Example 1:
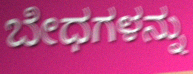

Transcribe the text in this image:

ಬೇಧಗಳನ್ನು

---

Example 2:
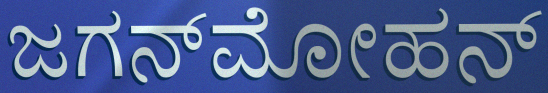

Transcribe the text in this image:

ಜಗನ್‌ಮೋಹನ್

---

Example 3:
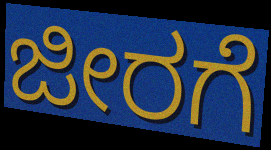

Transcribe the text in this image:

ಜೀರಗೆ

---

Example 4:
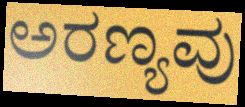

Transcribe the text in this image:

ಅರಣ್ಯವು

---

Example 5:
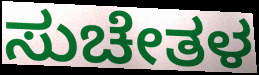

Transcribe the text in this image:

ಸುಚೇತಳ